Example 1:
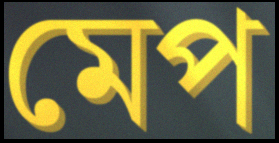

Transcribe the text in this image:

মেপ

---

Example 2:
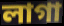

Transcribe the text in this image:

লাগা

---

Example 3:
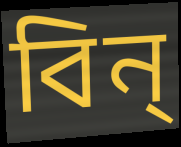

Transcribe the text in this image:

বিন্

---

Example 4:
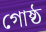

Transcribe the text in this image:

গোষ্ঠ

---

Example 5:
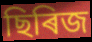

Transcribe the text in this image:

ছিৰিজ